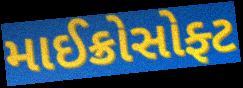
માઈક્રોસોફ્ટ